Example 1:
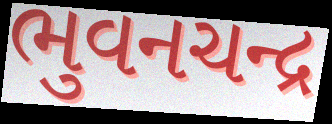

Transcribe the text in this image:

ભુવનચન્દ્ર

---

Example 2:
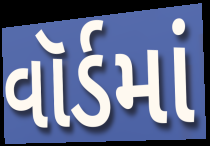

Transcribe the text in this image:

વૉર્ડમાં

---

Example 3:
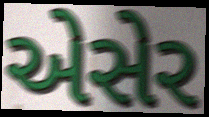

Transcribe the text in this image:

એસેર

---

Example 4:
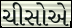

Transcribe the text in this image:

ચીસોએ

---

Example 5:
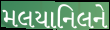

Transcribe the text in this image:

મલયાનિલને